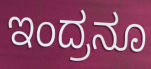
ಇಂದ್ರನೂ